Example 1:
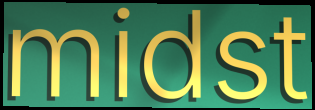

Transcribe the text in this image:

midst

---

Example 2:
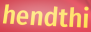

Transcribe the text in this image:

hendthi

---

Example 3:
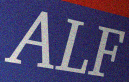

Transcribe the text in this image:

ALF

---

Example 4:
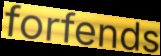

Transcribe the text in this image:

forfends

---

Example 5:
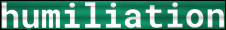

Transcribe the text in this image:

humiliation